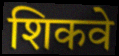
शिकवे